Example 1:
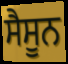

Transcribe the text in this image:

ਸੈਸੂਨ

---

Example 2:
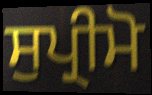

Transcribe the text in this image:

ਸੁਪ੍ਰੀਮੋ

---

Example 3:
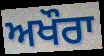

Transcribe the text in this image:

ਅਖੌਰਾ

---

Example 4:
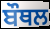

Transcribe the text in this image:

ਬੌਥਲ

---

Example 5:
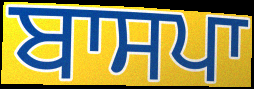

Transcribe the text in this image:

ਬਾਸਪਾ